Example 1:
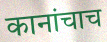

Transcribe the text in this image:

कानांचाच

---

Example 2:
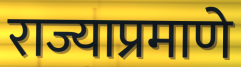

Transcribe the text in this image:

राज्याप्रमाणे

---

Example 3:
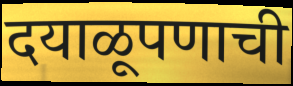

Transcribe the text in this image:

दयाळूपणाची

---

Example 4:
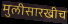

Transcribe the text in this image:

मुलीसारखीच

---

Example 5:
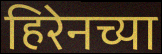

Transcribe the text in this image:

हिरेनच्या